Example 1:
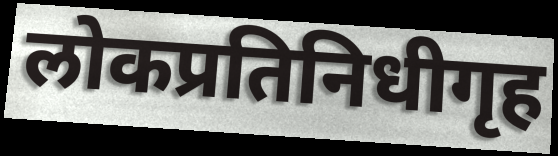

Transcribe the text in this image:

लोकप्रतिनिधीगृह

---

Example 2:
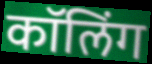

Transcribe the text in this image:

कॉलिंग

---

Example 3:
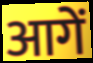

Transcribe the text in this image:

आगें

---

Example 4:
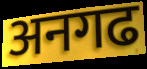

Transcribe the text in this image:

अनगढ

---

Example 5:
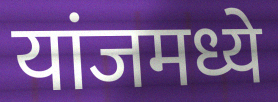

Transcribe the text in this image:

यांजमध्ये